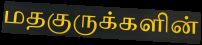
மதகுருக்களின்